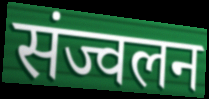
संज्वलन